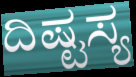
ದಿಷ್ಟಸ್ಯ